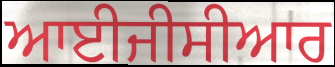
ਆਈਜੀਸੀਆਰ